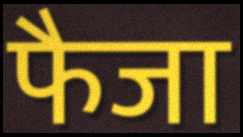
फैजा